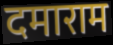
दमाराम